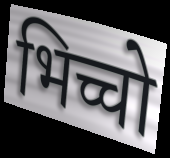
भिच्चो